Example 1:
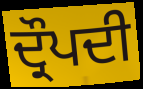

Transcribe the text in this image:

ਦ੍ਰੌਪਦੀ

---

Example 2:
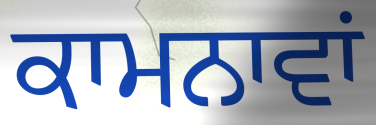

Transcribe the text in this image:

ਕਾਮਨਾਵਾਂ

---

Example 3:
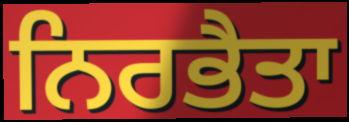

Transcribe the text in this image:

ਨਿਰਭੈਤਾ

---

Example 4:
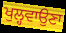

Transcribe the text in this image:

ਖੁਲ੍ਹਵਾਉਣਾ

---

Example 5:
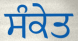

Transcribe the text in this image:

ਸੰਕੇਤ